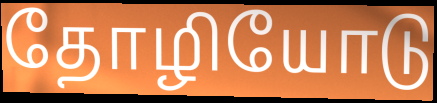
தோழியோடு